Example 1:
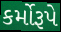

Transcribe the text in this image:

કર્મોરૂપે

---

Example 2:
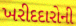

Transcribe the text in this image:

ખરીદદારોની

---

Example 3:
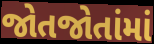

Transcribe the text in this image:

જોતજોતાંમાં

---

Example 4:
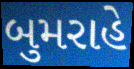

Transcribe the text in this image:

બુમરાહે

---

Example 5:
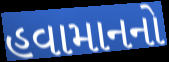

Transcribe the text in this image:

હવામાનનો